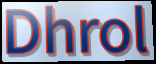
Dhrol